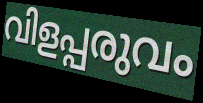
വിളപ്പരുവം